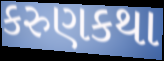
કરુણકથા